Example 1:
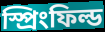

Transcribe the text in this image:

স্প্রিংফিল্ড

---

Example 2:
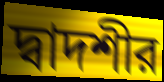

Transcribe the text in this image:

দ্বাদশীর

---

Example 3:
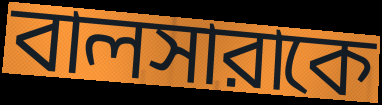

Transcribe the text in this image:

বালসারাকে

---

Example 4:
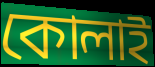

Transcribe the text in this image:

কোলাই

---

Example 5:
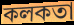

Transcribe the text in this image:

কলকতা